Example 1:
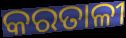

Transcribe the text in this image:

କରତାଳୀ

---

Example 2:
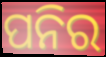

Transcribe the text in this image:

ପନିର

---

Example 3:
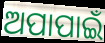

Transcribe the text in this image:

ଅପାପାଇଁ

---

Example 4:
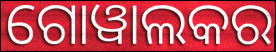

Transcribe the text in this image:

ଗୋୱାଲକର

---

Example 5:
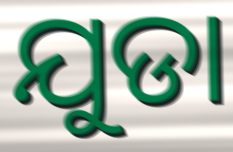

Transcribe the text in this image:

ଯୁଡା